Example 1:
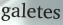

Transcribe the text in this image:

galetes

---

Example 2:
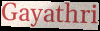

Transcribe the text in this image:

Gayathri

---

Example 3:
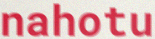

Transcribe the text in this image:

nahotu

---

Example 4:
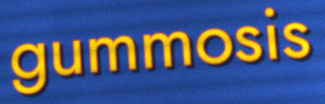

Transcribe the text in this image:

gummosis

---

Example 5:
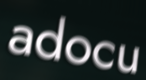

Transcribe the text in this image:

adocu